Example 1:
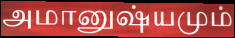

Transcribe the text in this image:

அமானுஷ்யமும்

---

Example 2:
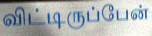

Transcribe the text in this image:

விட்டிருப்பேன்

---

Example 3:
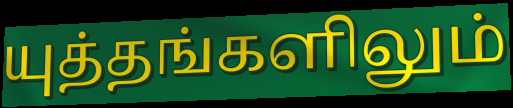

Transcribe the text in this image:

யுத்தங்களிலும்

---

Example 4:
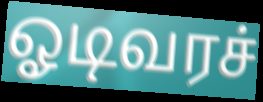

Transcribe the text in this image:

ஓடிவரச்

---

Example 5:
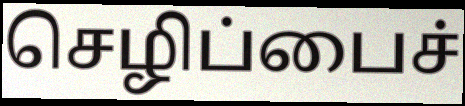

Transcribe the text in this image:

செழிப்பைச்